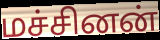
மச்சினன்